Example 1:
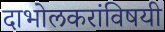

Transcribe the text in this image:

दाभोलकरांविषयी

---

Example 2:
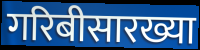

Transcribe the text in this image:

गरिबीसारख्या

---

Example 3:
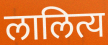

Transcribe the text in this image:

लालित्य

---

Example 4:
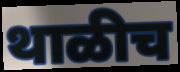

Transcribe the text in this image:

थाळीच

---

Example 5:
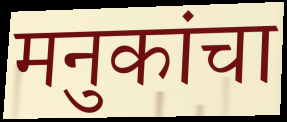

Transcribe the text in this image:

मनुकांचा